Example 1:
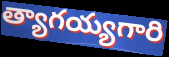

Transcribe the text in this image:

త్యాగయ్యగారి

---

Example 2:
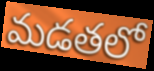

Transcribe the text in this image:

మడతలో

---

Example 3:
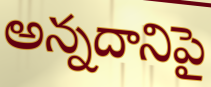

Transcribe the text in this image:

అన్నదానిపై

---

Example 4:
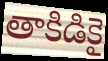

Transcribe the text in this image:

తాకిడికై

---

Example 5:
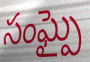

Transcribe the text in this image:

సంఘ్పై